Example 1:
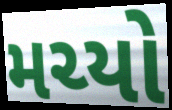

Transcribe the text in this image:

મચ્યો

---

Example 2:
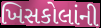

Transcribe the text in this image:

ખિસકોલાંની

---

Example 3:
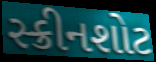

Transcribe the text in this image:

સ્ક્રીનશોટ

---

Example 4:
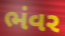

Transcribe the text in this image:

ભંવર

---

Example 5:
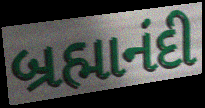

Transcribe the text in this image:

બ્રહ્માનંદી